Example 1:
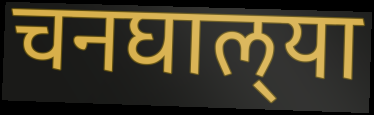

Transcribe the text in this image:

चनघाल्या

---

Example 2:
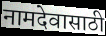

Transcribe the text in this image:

नामदेवासाठी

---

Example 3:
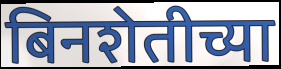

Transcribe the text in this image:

बिनशेतीच्या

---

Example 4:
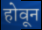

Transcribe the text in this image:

होवून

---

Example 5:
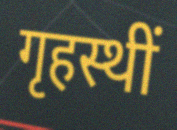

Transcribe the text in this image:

गृहस्थीं